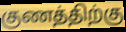
குணத்திற்கு